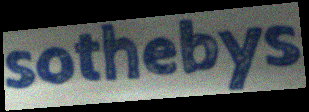
sothebys